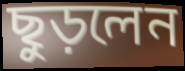
ছুড়লেন